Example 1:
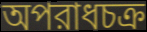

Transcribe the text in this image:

অপরাধচক্র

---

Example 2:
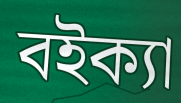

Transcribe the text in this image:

বইক্যা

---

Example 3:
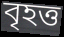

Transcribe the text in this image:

বৃহত্ত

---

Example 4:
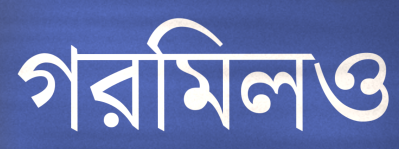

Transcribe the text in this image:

গরমিলও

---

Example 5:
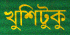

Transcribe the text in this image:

খুশিটুকু